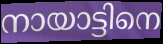
നായാട്ടിനെ